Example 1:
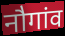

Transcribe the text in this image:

नौगांव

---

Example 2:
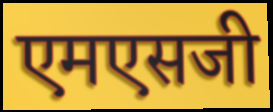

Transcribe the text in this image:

एमएसजी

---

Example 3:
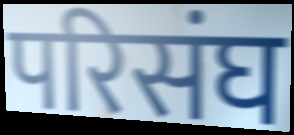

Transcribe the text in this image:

परिसंघ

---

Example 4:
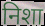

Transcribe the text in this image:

निशा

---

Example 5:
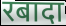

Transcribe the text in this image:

रबादा